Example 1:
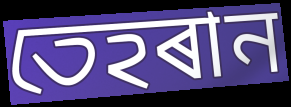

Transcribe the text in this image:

তেহৰান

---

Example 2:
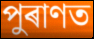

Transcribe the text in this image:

পুৰাণত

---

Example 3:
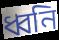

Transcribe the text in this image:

ধ্বনি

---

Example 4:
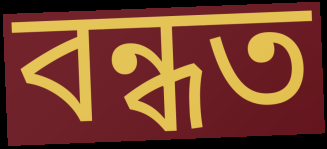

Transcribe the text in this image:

বন্ধত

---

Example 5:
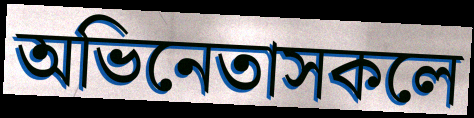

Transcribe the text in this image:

অভিনেতাসকলে